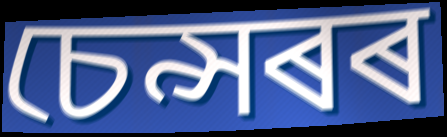
চেন্সৰৰ